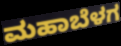
ಮಹಾಬೆಳಗ